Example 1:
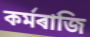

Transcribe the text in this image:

কৰ্মৰাজি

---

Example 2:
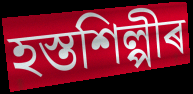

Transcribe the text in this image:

হস্তশিল্পীৰ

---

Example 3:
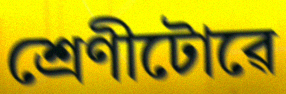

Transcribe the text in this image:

শ্ৰেণীটোৱে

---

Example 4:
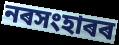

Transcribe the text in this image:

নৰসংহাৰৰ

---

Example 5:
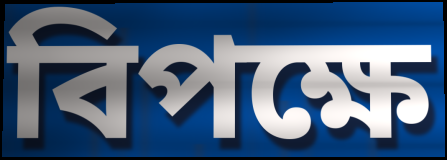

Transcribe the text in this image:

বিপক্ষে